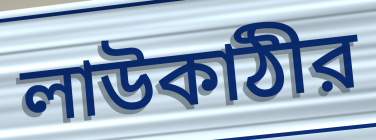
লাউকাঠীর